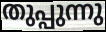
തുപ്പുന്നു